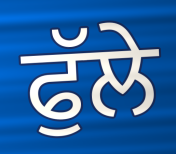
ਫੁੱਲੇ